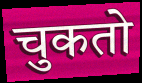
चुकतो